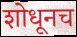
शोधूनच